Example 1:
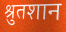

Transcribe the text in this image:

श्रुतशान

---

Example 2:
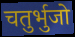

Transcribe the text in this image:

चतुर्भुजो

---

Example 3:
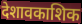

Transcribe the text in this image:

देशावकाशिक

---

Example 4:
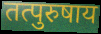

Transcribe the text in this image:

तत्पुरुषाय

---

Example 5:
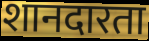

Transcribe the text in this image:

शानदारता